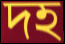
দহ